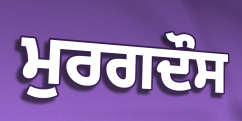
ਮੁਰਗਦੌਸ